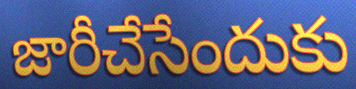
జారీచేసేందుకు